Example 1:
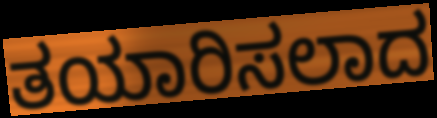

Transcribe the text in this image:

ತಯಾರಿಸಲಾದ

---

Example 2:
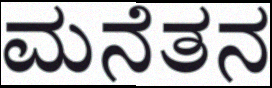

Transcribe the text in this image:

ಮನೆತನ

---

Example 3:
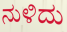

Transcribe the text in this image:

ನುಳಿದು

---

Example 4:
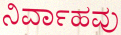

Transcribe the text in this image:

ನಿರ್ವಾಹವು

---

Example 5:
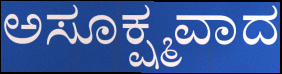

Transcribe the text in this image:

ಅಸೂಕ್ಷ್ಮವಾದ